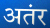
अतंर